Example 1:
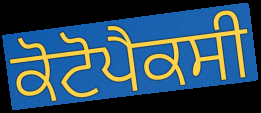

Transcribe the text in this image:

ਕੋਟੋਪੈਕਸੀ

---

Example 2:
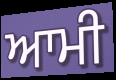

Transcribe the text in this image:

ਆਮੀ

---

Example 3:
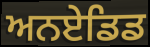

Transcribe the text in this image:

ਅਨਏਡਿਡ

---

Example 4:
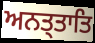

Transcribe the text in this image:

ਅਨਤ੍ਤਾਤਿ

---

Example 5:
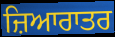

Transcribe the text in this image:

ਜ਼ਿਆਰਾਤਰ